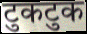
टुकटुक